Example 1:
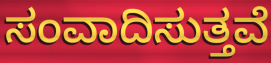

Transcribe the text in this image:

ಸಂವಾದಿಸುತ್ತವೆ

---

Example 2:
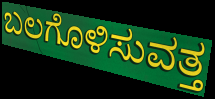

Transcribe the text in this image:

ಬಲಗೊಳಿಸುವತ್ತ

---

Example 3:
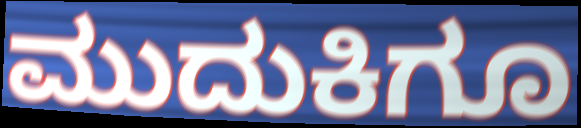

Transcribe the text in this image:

ಮುದುಕಿಗೂ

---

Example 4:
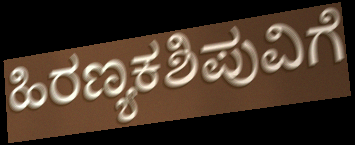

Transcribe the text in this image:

ಹಿರಣ್ಯಕಶಿಪುವಿಗೆ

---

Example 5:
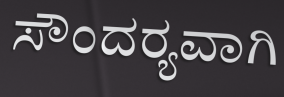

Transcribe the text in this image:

ಸೌಂದರ‍್ಯವಾಗಿ